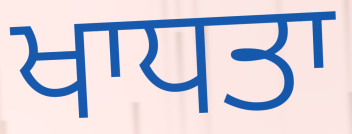
ਖਾਧਤਾ